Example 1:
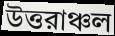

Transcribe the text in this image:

উত্তরাঞ্চল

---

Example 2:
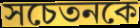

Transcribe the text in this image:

সচেতনকে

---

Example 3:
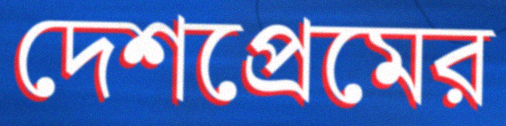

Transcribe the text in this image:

দেশপ্রেমের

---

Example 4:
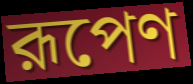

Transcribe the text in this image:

রূপেণ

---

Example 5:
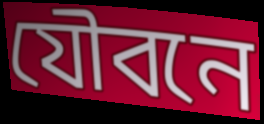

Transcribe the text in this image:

যৌবনে